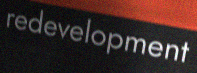
redevelopment